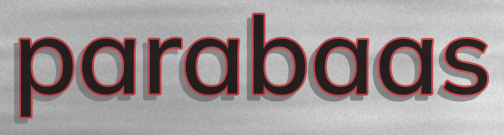
parabaas